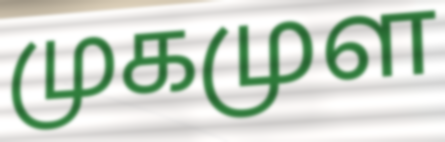
முகமுள